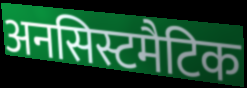
अनसिस्टमैटिक